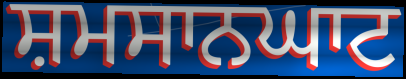
ਸ਼ਮਸਾਨਘਾਟ